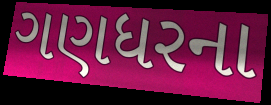
ગણધરના